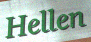
Hellen